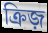
ক্রিজ়